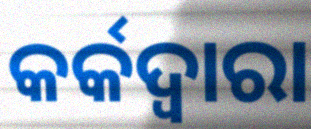
କର୍କଦ୍ଵାରା